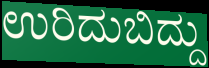
ಉರಿದುಬಿದ್ದು